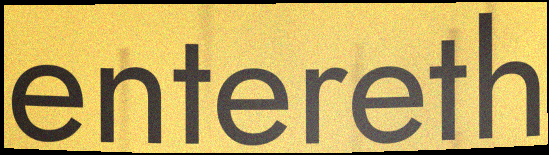
entereth